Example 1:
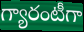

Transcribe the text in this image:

గ్యారంటీగా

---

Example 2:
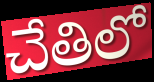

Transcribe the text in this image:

చేతిలో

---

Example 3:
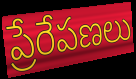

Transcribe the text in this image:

ప్రేరేపణలు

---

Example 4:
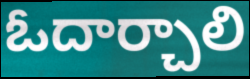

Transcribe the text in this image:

ఓదార్చాలి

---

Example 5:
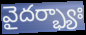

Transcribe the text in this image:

వైదర్భ్యాః